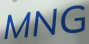
MNG